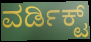
ವರ್ಡಿಕ್ಟ್